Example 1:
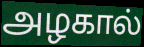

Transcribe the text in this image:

அழகால்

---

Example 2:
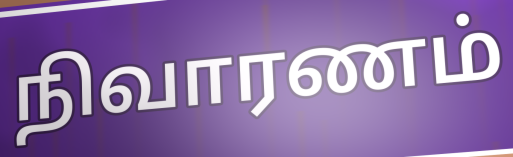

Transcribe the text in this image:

நிவாரணம்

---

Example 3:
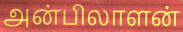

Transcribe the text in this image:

அன்பிலாளன்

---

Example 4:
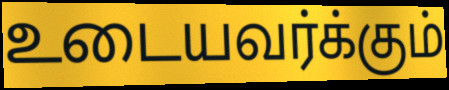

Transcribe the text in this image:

உடையவர்க்கும்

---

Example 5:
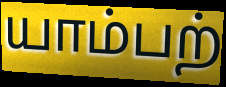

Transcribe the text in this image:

யாம்பற்